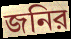
জনির